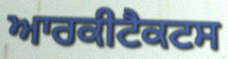
ਆਰਕੀਟੈਕਟਸ